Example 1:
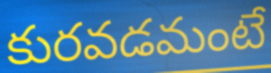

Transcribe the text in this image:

కురవడమంటే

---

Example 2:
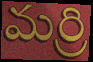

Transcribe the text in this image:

మర్రి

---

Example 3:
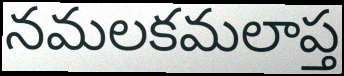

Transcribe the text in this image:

నమలకమలాప్త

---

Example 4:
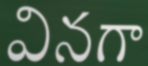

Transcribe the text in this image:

వినగా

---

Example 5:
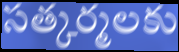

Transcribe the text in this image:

సత్కర్మలకు